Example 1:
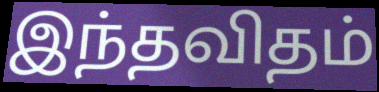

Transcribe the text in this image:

இந்தவிதம்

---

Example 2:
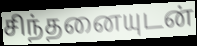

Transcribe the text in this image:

சிந்தனையுடன்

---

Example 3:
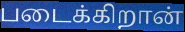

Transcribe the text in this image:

படைக்கிறான்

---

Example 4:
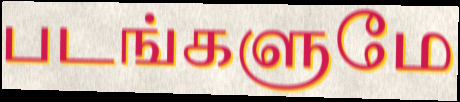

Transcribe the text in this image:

படங்களுமே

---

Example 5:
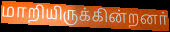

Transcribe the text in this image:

மாறியிருக்கின்றனர்